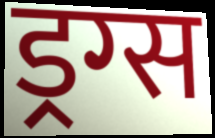
ड्रग्‍स